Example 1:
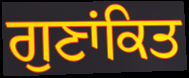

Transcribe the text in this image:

ਗੁਣਾਂਕਿਤ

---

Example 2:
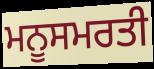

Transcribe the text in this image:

ਮਨੂਸਮਰਤੀ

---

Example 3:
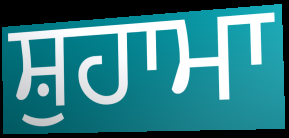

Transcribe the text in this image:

ਸ਼ੁਹਾਮਾ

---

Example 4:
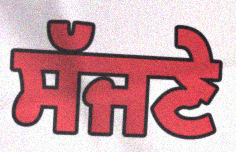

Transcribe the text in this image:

ਸੱਜਣੇ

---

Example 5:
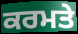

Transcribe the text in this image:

ਕਰਮਤੇ